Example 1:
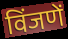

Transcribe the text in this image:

विंजणें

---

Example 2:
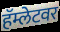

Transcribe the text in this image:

हॅम्लेटवर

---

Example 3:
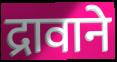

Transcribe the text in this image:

द्रावाने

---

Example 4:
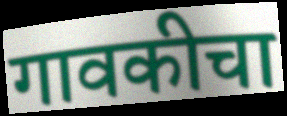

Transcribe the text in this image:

गावकीचा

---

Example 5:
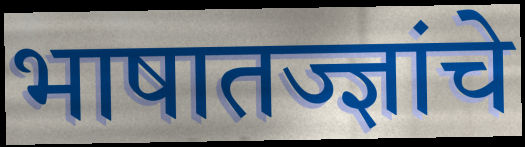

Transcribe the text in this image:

भाषातज्ज्ञांचे